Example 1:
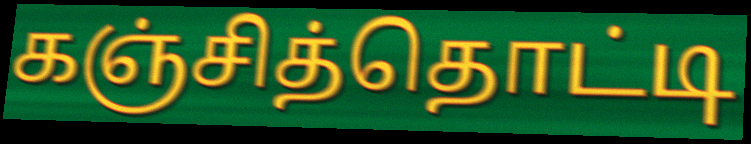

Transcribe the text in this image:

கஞ்சித்தொட்டி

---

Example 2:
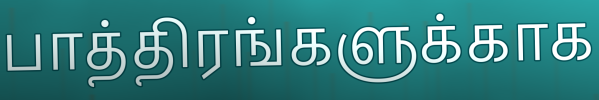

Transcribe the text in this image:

பாத்திரங்களுக்காக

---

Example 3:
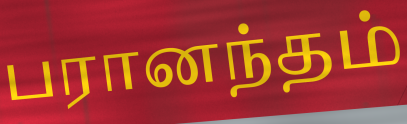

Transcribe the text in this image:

பரானந்தம்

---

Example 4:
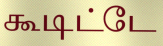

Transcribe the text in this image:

கூடிட்டே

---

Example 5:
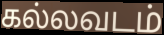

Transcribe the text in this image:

கல்லவடம்